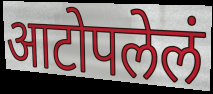
आटोपलेलं